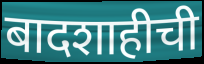
बादशाहीची